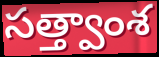
సత్త్వాంశ